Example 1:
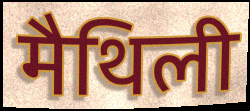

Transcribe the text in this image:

मैथिली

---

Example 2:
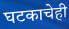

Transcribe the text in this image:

घटकाचेही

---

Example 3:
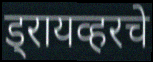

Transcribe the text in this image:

ड्रायव्हरचे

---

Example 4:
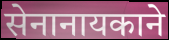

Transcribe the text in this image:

सेनानायकाने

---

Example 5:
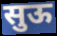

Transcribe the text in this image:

सुऊ